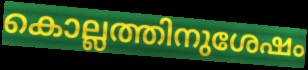
കൊല്ലത്തിനുശേഷം